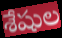
శేషుల